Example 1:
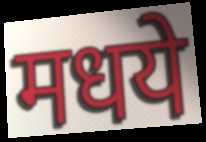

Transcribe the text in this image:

मधये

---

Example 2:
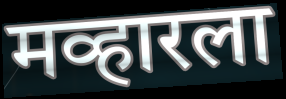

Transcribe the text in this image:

मव्हारला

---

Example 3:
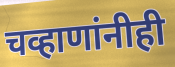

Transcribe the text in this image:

चव्हाणांनीही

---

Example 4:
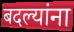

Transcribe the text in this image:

बदल्यांना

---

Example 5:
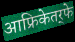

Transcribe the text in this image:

आफ्रिकेतर्फे